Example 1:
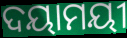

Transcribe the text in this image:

ଦୟାମୟୀ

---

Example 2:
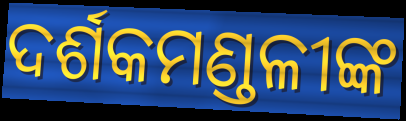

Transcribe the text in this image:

ଦର୍ଶକମଣ୍ଡଳୀଙ୍କ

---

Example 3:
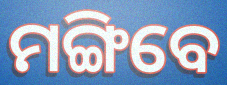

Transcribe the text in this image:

ମଙ୍ଗିବେ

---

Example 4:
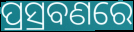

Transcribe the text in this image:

ପ୍ରସ୍ରବଣରେ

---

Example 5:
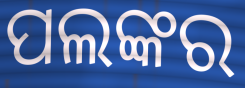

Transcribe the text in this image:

ପଲଙ୍କର